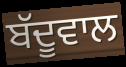
ਬੱਦੂਵਾਲ